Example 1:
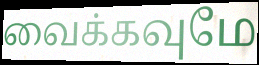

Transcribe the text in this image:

வைக்கவுமே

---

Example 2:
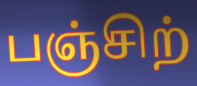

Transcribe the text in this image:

பஞ்சிற்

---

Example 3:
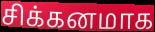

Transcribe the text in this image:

சிக்கனமாக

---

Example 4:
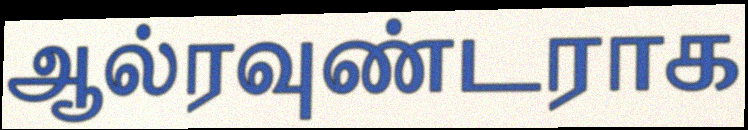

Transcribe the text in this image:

ஆல்ரவுண்டராக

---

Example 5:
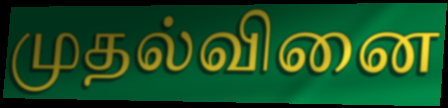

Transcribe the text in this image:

முதல்வினை